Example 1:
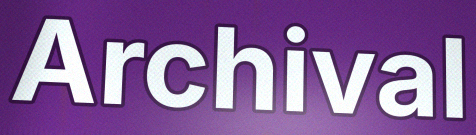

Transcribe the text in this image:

Archival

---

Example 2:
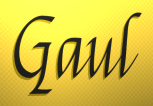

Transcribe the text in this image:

Gaul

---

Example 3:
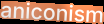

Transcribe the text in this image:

aniconism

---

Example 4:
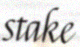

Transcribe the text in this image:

stake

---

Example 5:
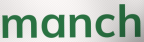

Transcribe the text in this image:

manch